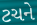
ટચને